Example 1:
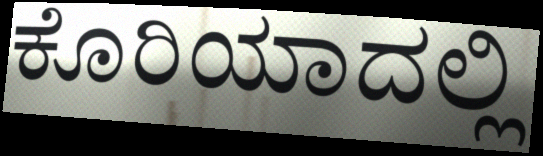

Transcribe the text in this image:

ಕೊರಿಯಾದಲ್ಲಿ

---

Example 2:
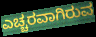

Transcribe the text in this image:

ಎಚ್ಚರವಾಗಿರುವ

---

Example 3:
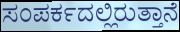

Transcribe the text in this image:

ಸಂಪರ್ಕದಲ್ಲಿರುತ್ತಾನೆ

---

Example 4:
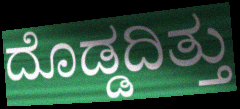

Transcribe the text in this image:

ದೊಡ್ಡದಿತ್ತು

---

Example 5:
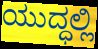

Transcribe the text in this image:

ಯುದ್ಧಲ್ಲಿ